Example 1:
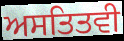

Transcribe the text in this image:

ਅਸਤਿਤਵੀ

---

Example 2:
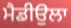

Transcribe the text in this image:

ਮੈਡੀਉਲਾ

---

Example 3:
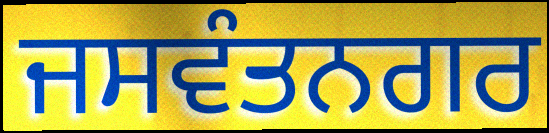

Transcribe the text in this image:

ਜਸਵੰਤਨਗਰ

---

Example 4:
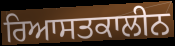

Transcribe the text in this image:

ਰਿਆਸਤਕਾਲੀਨ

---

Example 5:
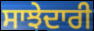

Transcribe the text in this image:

ਸਾਝੇਦਾਰੀ